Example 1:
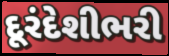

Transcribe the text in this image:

દૂરંદેશીભરી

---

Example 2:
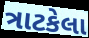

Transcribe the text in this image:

ત્રાટકેલા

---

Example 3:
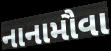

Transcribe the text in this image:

નાનામૌવા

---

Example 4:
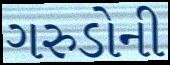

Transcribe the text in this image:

ગરુડોની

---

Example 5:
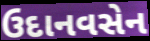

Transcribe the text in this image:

ઉદાનવસેન